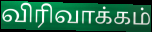
விரிவாக்கம்